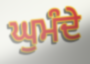
ਘੁਮੰਦੇ